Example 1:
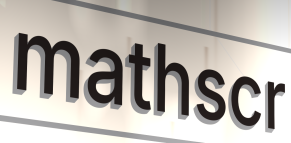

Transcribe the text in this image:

mathscr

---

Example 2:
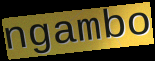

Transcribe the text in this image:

ngambo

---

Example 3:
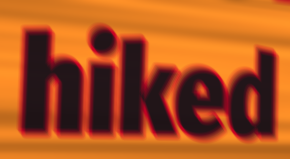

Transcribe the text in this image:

hiked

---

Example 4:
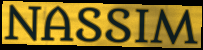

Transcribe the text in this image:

NASSIM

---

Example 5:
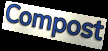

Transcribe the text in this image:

Compost